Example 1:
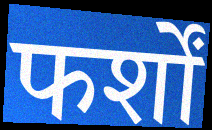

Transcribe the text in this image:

फर्शों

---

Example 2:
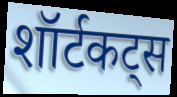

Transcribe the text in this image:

शॉर्टकट्स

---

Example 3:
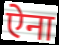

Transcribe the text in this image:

ऐना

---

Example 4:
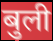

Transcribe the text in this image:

बुली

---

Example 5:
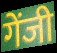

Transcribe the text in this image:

गेंजी